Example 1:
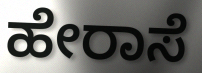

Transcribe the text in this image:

ಹೇರಾಸೆ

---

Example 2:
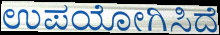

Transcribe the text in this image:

ಉಪಯೋಗಿಸಿದೆ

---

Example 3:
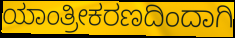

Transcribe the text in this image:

ಯಾಂತ್ರೀಕರಣದಿಂದಾಗಿ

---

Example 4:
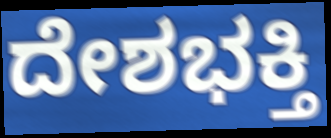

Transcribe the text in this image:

ದೇಶಭಕ್ತಿ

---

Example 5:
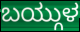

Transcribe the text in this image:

ಬಯ್ಗುಳ